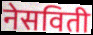
नेसविती